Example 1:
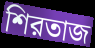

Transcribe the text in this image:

শিরতাজ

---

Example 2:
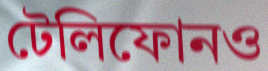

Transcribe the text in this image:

টেলিফোনও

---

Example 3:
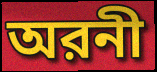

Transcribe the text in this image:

অরনী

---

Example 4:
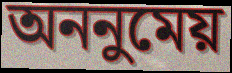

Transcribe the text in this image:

অননুমেয়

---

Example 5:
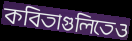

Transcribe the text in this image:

কবিতাগুলিতেও